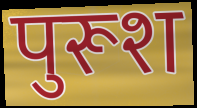
पुरूश